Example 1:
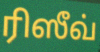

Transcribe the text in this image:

ரிஸீவ்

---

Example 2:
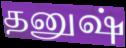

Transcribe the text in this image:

தனுஷ்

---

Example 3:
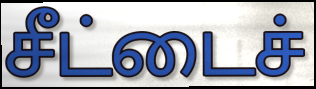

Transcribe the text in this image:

சீட்டைச்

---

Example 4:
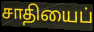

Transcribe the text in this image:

சாதியைப்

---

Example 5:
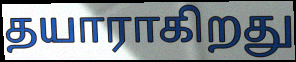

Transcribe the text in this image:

தயாராகிறது